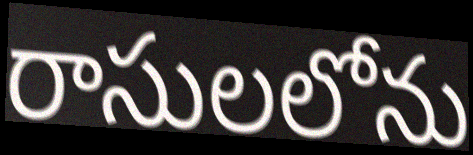
రాసులలోను